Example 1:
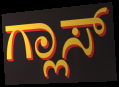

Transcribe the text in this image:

ಗ್ಲಾಸ್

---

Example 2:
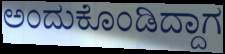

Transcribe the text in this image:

ಅಂದುಕೊಂಡಿದ್ದಾಗ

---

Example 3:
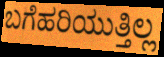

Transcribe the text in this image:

ಬಗೆಹರಿಯುತ್ತಿಲ್ಲ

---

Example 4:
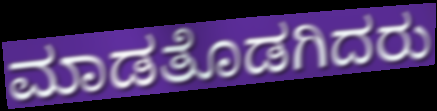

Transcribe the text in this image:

ಮಾಡತೊಡಗಿದರು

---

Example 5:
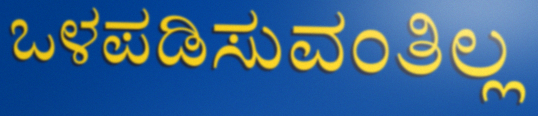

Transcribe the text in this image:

ಒಳಪಡಿಸುವಂತಿಲ್ಲ